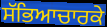
ਸੱਭਿਆਚਾਰਕੇ